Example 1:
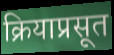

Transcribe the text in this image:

क्रियाप्रसूत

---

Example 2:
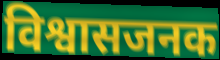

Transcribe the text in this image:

विश्वासजनक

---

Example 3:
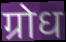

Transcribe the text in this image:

ग्रोध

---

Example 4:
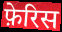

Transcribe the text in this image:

फ़ेरिस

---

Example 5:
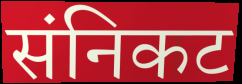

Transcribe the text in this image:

संनिकट